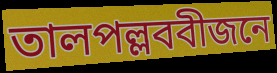
তালপল্লববীজনে